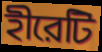
হীরেটি